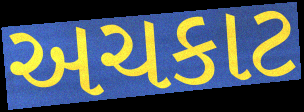
અચકાટ